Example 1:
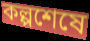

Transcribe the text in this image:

কল্পশেষে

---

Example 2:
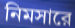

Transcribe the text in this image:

নিমসারে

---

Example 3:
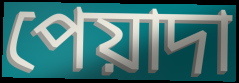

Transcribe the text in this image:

পেয়াদা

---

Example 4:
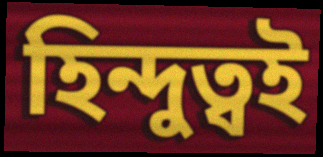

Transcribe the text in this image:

হিন্দুত্বই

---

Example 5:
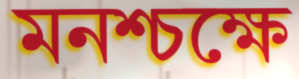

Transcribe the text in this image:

মনশ্চক্ষে